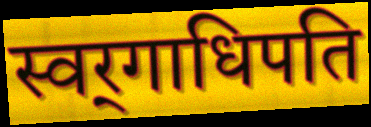
स्वर्गाधिपति